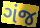
ગંજ